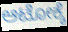
ಆಟೋಕ್ಕೆ